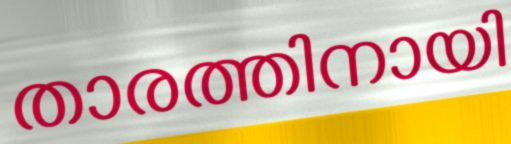
താരത്തിനായി